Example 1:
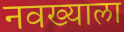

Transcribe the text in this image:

नवख्याला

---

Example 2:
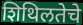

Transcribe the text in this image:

शिथिलतेचे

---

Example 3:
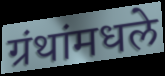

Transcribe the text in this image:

ग्रंथांमधले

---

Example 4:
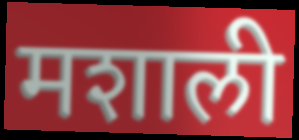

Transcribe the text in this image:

मशाली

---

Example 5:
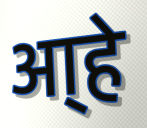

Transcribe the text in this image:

आ्हे